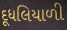
દૂધલિયાળી